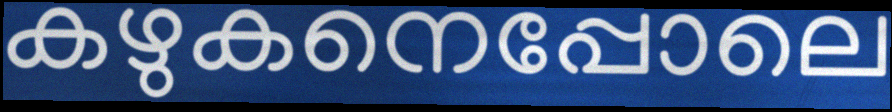
കഴുകനെപ്പോലെ